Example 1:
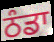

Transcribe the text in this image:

ਠੰਡਾ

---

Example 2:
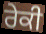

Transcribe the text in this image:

ਰੇਕੀ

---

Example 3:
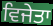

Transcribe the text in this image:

ਵਿਜੇਤਾ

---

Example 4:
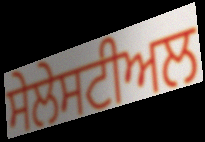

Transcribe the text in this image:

ਸੇਲੇਸਟੀਅਲ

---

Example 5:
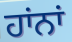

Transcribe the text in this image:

ਹਾਂਨਾਂ